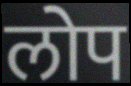
लोप